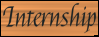
Internship